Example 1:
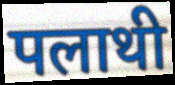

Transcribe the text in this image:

पलाथी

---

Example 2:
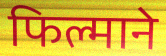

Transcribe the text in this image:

फिल्‍माने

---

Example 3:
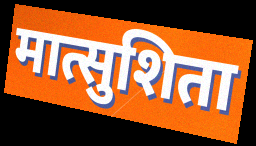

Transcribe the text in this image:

मात्सुशिता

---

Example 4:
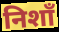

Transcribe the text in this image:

निशाँ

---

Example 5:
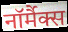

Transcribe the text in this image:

नॉर्मैक्स